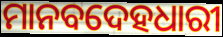
ମାନବଦେହଧାରୀ